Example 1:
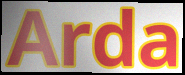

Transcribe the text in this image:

Arda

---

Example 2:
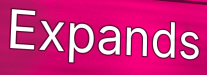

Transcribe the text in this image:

Expands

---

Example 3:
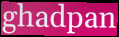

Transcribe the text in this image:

ghadpan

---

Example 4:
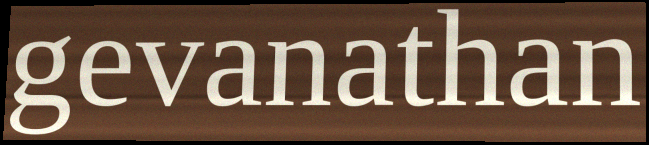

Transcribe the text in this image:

gevanathan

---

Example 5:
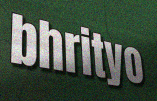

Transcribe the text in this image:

bhrityo